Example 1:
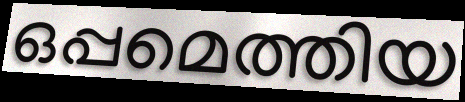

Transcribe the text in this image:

ഒപ്പമെത്തിയ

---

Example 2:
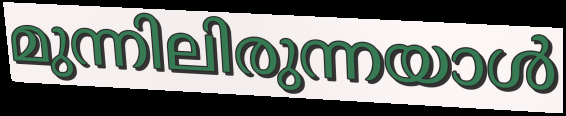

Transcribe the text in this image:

മുന്നിലിരുന്നയാൾ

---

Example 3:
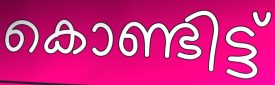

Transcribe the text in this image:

കൊണ്ടിട്ട്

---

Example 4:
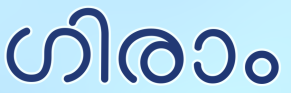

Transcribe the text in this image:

ഗിരാം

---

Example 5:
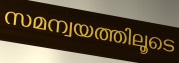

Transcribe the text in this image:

സമന്വയത്തിലൂടെ